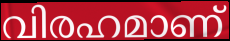
വിരഹമാണ്